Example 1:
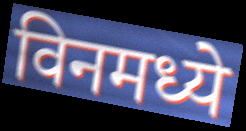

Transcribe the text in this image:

विनमध्ये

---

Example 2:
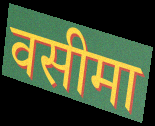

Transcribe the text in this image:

वसीमा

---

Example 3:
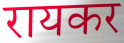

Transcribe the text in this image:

रायकर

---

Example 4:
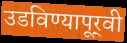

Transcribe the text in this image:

उडविण्यापूर्वी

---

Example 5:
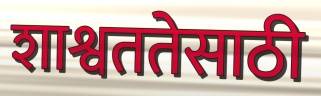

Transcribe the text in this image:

शाश्वततेसाठी